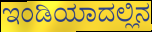
ಇಂಡಿಯಾದಲ್ಲಿನ